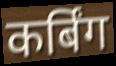
कर्बिंग